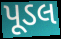
પૂડલ